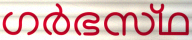
ഗർഭസ്‌ഥ